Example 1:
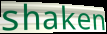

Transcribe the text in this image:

shaken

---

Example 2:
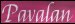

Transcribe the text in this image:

Pavalan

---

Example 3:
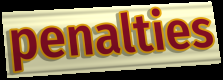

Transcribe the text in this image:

penalties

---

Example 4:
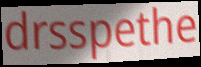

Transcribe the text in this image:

drsspethe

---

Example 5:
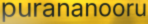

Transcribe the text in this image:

purananooru